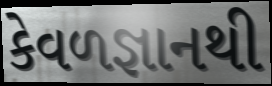
કેવળજ્ઞાનથી